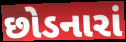
છોડનારાં